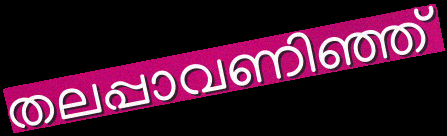
തലപ്പാവണിഞ്ഞ്